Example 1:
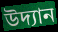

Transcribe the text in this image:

উদ্যান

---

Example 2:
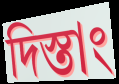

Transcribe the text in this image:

দিস্তাং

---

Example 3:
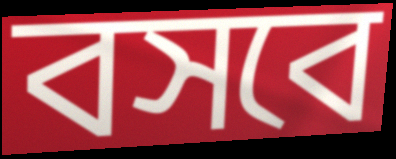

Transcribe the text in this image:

বসবে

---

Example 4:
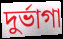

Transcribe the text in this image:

দুর্ভাগা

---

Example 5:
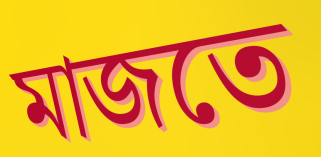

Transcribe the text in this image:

মাজতে